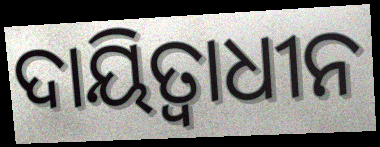
ଦାୟିତ୍ୱାଧୀନ